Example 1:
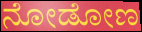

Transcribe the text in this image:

ನೋಡೋಣ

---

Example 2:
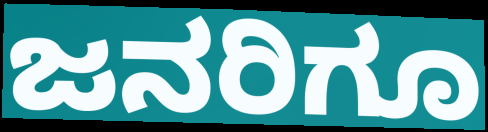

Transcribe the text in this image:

ಜನರಿಗೂ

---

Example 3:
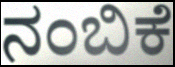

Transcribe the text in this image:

ನಂಬಿಕೆ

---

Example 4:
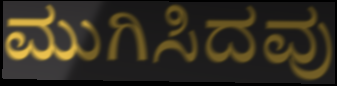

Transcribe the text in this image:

ಮುಗಿಸಿದವು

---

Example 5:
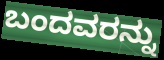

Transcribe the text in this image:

ಬಂದವರನ್ನು